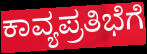
ಕಾವ್ಯಪ್ರತಿಭೆಗೆ